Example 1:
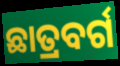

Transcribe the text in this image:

ଛାତ୍ରବର୍ଗ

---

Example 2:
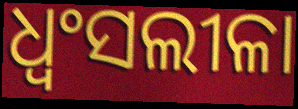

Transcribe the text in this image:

ଧ୍ୱଂସଲୀଳା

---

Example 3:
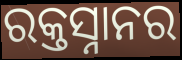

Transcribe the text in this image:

ରକ୍ତସ୍ନାନର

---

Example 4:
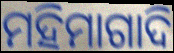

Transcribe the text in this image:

ମହିମାଗାଦି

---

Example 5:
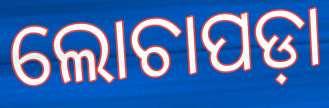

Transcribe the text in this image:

ଲୋଚାପଡ଼ା